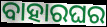
ବାହାରଘର